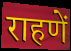
राहणें